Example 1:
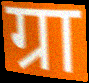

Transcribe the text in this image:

ग्रा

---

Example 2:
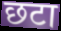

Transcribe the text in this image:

छटा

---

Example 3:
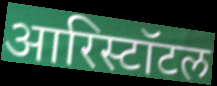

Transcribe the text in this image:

आरिस्टॉटल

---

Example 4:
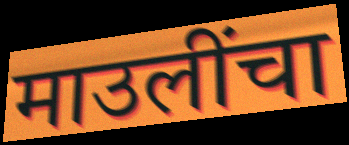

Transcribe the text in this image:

माउलींचा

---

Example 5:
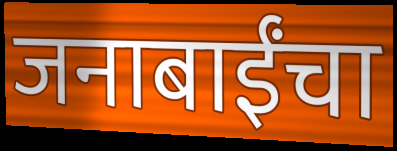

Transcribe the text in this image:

जनाबाईंचा